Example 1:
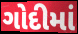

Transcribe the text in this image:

ગોદીમાં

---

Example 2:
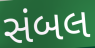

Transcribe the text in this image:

સંબલ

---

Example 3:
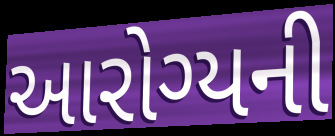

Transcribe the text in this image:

આરોગ્યની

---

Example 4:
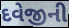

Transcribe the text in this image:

દવેજીની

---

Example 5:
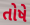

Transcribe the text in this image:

તોષે